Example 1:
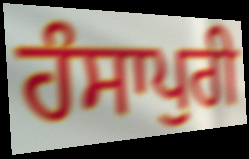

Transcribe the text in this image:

ਹੰਸਾਪੁਰੀ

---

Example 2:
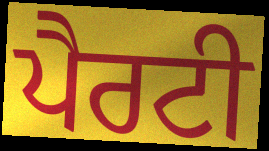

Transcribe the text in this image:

ਪੈਰਟੀ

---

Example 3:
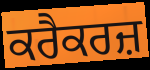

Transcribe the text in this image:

ਕਰੈਕਰਜ਼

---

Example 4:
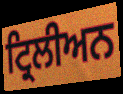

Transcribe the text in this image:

ਟ੍ਰਿਲੀਅਨ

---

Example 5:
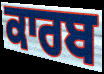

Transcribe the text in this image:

ਕਾਰਬ